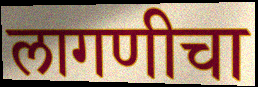
लागणीचा